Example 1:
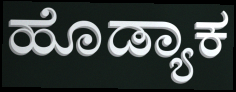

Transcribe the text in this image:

ಹೊಡ್ಯಾಕ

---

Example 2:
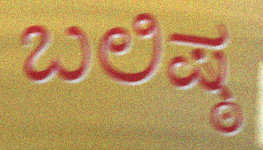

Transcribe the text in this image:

ಬಲಿಷ್ಠ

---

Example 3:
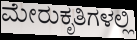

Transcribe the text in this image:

ಮೇರುಕೃತಿಗಳಲ್ಲಿ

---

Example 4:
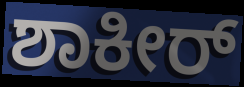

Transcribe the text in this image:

ಶಾಕೀರ್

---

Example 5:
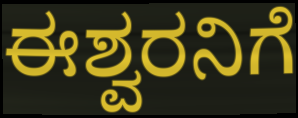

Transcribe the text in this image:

ಈಶ್ವರನಿಗೆ